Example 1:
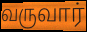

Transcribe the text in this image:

வருவார்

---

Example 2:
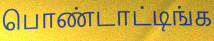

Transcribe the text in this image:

பொண்டாட்டிங்க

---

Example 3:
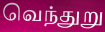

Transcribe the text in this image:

வெந்துறு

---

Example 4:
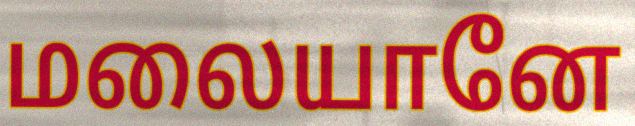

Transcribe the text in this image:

மலையானே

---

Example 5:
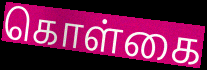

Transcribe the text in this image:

கொள்கை